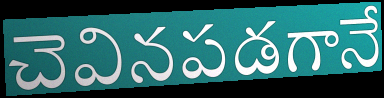
చెవినపడగానే